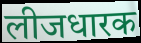
लीजधारक